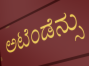
ಅಟೆಂಡೆನ್ಸು